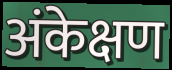
अंकेक्षण